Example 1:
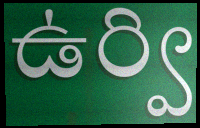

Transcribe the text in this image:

ఉర్వి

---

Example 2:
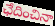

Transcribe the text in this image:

ఛేదించినా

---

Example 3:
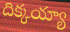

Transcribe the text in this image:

దిక్కయ్యా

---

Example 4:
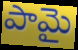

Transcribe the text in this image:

పామై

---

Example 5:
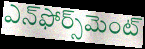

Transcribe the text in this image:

ఎన్‌ఫోర్స్‌మెంట్